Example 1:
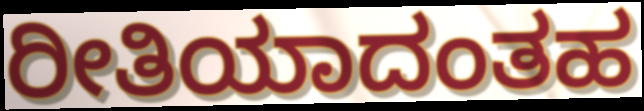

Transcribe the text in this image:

ರೀತಿಯಾದಂತಹ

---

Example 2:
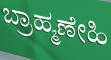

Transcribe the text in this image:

ಬ್ರಾಹ್ಮಣೇಹಿ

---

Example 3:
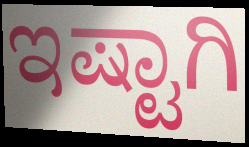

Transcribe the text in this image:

ಇಷ್ಟಾಗಿ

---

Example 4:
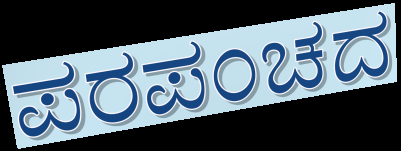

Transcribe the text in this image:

ಪರಪಂಚದ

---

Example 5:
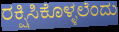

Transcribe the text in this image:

ರಕ್ಷಿಸಿಕೊಳ್ಳಲೆಂದು